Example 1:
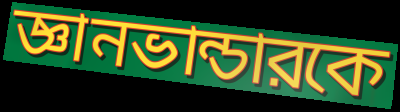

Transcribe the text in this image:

জ্ঞানভান্ডারকে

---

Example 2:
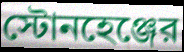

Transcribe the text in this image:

স্টোনহেঞ্জের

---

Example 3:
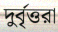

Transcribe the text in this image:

দুর্বৃত্তরা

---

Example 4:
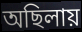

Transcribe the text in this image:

অছিলায়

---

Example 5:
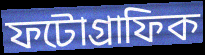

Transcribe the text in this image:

ফটোগ্রাফিক